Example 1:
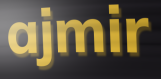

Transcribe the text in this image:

ajmir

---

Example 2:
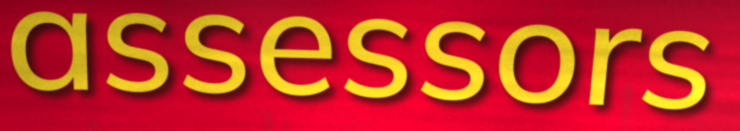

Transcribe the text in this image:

assessors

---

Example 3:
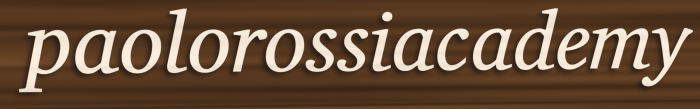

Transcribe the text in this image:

paolorossiacademy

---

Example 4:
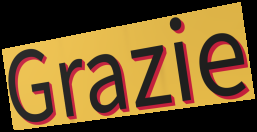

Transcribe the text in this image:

Grazie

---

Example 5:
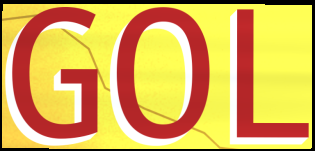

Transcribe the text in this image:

GOL